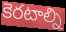
కెరటాల్ని